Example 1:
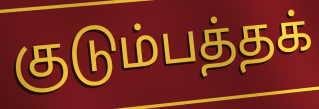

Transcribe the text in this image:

குடும்பத்தக்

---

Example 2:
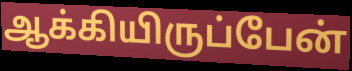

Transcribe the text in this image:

ஆக்கியிருப்பேன்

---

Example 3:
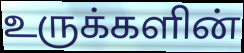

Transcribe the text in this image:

உருக்களின்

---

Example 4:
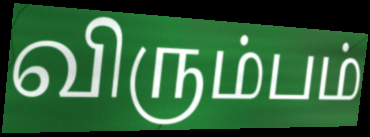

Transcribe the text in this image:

விரும்பம்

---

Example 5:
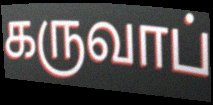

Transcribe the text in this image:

கருவாப்